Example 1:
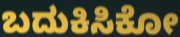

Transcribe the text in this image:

ಬದುಕಿಸಿಕೋ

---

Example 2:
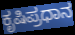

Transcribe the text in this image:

ಕೃಷಿಪ್ರಧಾನ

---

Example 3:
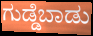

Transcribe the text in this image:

ಗುಡ್ಡೆಬಾಡು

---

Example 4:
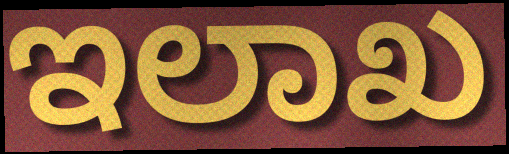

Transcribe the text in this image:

ಇಲಾಖ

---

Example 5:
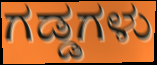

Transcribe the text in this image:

ಗಡ್ಡಗಳು